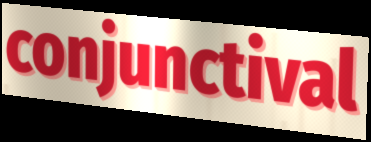
conjunctival